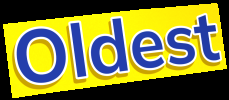
Oldest